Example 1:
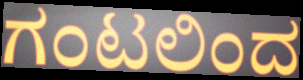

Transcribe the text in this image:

ಗಂಟಲಿಂದ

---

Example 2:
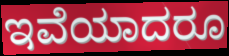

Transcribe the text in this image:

ಇವೆಯಾದರೂ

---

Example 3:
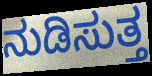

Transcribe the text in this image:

ನುಡಿಸುತ್ತ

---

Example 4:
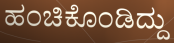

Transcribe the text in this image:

ಹಂಚಿಕೊಂಡಿದ್ದು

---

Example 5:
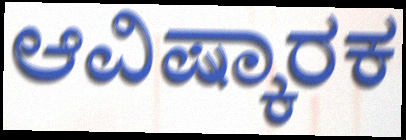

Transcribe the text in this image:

ಆವಿಷ್ಕಾರಕ